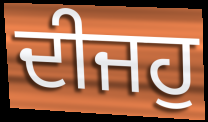
ਦੀਜਹੁ